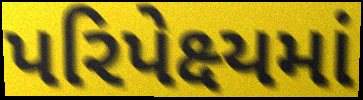
પરિપેક્ષ્યમાં